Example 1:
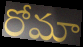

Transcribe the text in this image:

రోమా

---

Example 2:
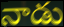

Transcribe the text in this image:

నాడు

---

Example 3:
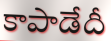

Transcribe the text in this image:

కాపాడేదీ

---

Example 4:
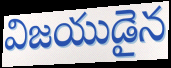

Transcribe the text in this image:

విజయుడైన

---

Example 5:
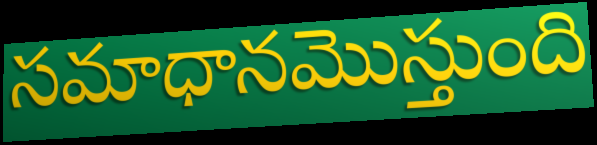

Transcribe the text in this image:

సమాధానమొస్తుంది